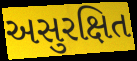
અસુરક્ષિત